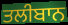
ਤਲੀਬਾਨ